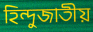
হিন্দুজাতীয়